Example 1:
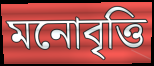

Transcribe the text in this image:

মনোবৃত্তি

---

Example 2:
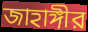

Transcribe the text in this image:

জাহাঙ্গীর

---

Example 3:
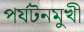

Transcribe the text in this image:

পর্যটনমুখী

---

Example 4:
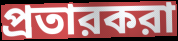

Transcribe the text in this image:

প্রতারকরা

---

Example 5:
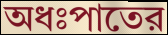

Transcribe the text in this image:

অধঃপাতের